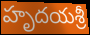
హృదయశ్రీ